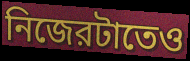
নিজেরটাতেও